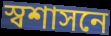
স্বশাসনে